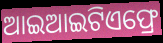
ଆଇଆଇଟିଏଫ୍ରେ